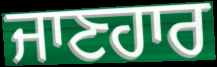
ਜਾਣਹਾਰ